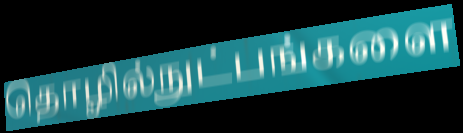
தொழில்நுட்பங்களை